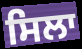
ਸਿਲਾ